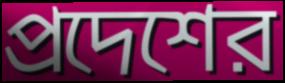
প্রদেশের